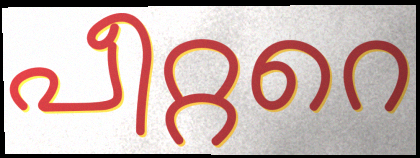
പീറ്ററെ